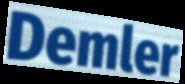
Demler